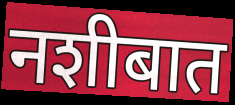
नशीबात